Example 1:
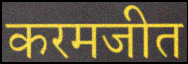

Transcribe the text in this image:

करमजीत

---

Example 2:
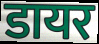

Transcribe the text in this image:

डायर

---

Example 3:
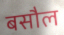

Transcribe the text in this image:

बसौल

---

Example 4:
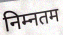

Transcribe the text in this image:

निम्नतम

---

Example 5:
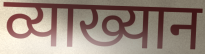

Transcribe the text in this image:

व्‍याख्‍यान